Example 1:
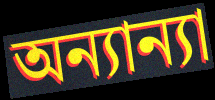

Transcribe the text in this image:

অন্যান্যা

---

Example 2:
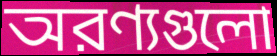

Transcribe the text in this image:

অরণ্যগুলো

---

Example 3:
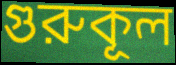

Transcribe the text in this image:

গুরুকূল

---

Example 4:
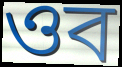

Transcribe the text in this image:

ওব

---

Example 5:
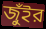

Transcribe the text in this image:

জুঁইর